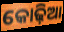
କୋଢ଼ିଆ